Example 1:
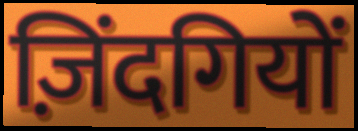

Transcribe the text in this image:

ज़िंदगियों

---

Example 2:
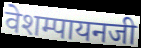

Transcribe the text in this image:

वेशम्पायनजी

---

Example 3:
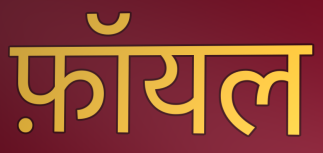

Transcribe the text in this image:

फ़ॉयल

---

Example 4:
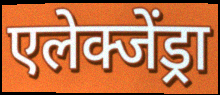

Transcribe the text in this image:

एलेक्जेंड्रा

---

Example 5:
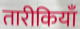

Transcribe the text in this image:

तारीकियाँ